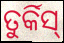
ତୁର୍କିସ୍